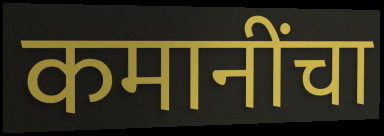
कमानींचा